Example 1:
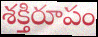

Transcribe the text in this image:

శక్తిరూపం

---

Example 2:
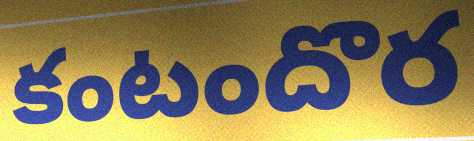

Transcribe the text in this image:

కంటందొర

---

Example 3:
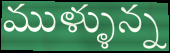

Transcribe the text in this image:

ముళ్ళున్న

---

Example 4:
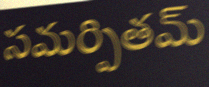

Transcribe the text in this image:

సమర్పితమ్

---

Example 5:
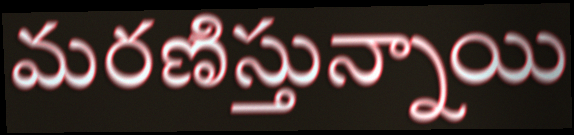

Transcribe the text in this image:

మరణిస్తున్నాయి